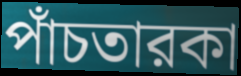
পাঁচতারকা